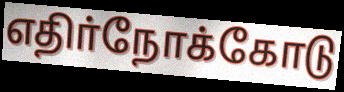
எதிர்நோக்கோடு